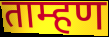
ताम्हण